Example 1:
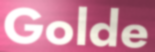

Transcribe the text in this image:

Golde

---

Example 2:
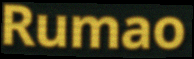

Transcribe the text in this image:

Rumao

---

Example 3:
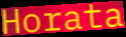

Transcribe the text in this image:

Horata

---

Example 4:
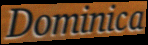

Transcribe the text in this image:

Dominica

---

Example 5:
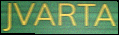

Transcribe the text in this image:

JVARTA